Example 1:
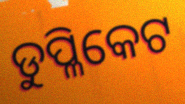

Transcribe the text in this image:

ଡୁପ୍ଳିକେଟ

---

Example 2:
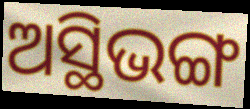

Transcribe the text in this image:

ଅସ୍ଥିଭଙ୍ଗ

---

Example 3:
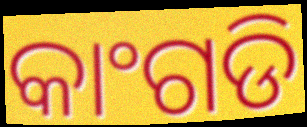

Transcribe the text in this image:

କାଂଗଡି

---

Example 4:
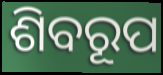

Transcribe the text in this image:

ଶିବରୂପ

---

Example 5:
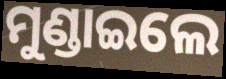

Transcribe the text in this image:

ମୁଣ୍ଡାଇଲେ